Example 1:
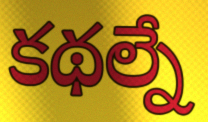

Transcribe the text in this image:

కథల్నే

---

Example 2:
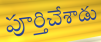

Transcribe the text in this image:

పూర్తిచేశాడు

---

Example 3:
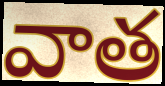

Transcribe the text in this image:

వాత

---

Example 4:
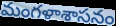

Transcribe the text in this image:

మంగళాశాసనం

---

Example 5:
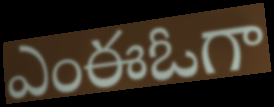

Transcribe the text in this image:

ఎంఈఓగా